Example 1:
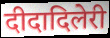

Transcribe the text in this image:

दीदादिलेरी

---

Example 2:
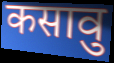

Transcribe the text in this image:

कसावु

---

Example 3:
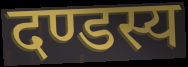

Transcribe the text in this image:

दण्डस्य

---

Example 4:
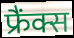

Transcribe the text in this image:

फ्रैंक्स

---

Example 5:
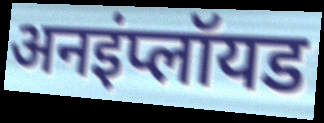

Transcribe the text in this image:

अनइंप्लॉयड